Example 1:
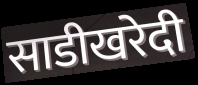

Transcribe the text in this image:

साडीखरेदी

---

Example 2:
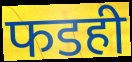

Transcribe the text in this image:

फडही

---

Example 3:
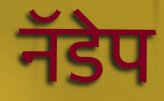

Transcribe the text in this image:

नॅडेप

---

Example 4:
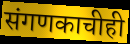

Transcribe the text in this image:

संगणकाचीही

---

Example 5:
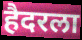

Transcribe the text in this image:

हैदरला